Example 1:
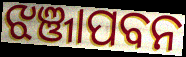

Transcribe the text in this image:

ଝଞ୍ଜାପବନ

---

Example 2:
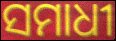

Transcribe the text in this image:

ସମାଧୀ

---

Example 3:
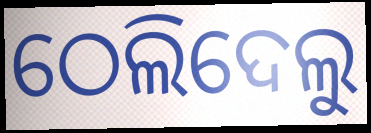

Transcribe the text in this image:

ଠେଲିଦେଲୁ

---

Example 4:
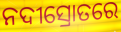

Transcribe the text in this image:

ନଦୀସ୍ରୋତରେ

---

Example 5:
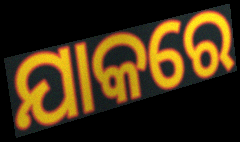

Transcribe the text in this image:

ଯାକରେ